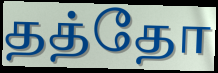
தத்தோ